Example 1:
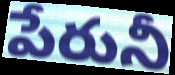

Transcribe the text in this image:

పేరునీ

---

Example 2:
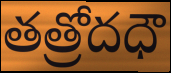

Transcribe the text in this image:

తత్రోదధౌ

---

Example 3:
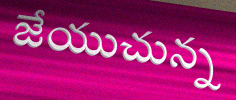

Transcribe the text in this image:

జేయుచున్న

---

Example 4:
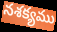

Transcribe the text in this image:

నశక్యము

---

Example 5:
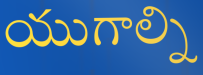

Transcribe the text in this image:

యుగాల్ని